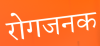
रोगजनक